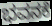
ಭವನಕೆ